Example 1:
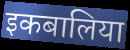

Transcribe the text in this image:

इकबालिया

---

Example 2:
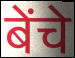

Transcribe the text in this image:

बेंचे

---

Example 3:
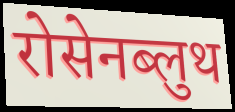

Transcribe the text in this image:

रोसेनब्लुथ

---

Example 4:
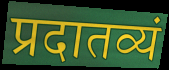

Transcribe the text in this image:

प्रदातव्यं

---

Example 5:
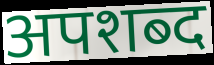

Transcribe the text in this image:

अपशब्‍द